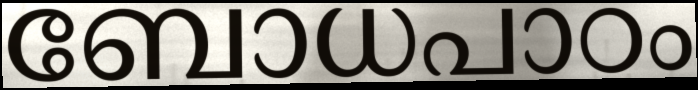
ബോധപാഠം